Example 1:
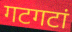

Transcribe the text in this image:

गटगटां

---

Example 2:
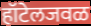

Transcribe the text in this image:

हॉटेलजवळ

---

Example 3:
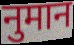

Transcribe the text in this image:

नुमान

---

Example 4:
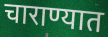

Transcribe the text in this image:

चाराण्यात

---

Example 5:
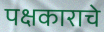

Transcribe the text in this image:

पक्षकाराचे